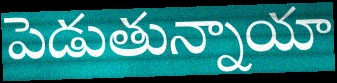
పెడుతున్నాయా